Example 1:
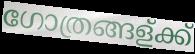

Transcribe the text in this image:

ഗോത്രങ്ങള്ക്ക്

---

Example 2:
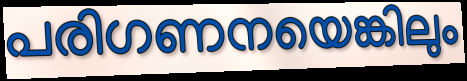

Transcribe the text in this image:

പരിഗണനയെങ്കിലും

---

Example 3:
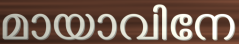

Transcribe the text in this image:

മായാവിനേ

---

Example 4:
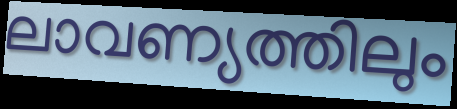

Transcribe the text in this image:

ലാവണ്യത്തിലും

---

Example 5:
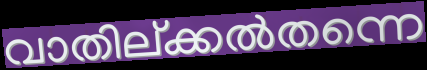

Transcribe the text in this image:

വാതില്ക്കൽതന്നെ